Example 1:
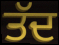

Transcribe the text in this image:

ਤੱਦ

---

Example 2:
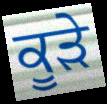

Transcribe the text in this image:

ਕੂਡ਼ੇ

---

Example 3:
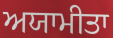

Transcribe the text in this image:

ਅਯਾਮੀਤਾ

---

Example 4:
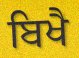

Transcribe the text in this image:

ਬਿਖੈ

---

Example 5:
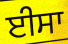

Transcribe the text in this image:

ਈਸਾ